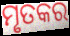
ମୃତକର